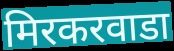
मिरकरवाडा